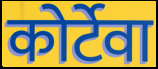
कोर्टेवा